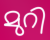
മുറി